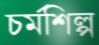
চর্মশিল্প